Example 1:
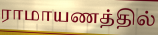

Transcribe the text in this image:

ராமாயணத்தில்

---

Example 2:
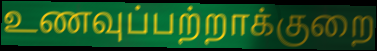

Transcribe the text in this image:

உணவுப்பற்றாக்குறை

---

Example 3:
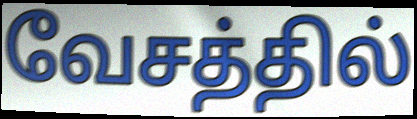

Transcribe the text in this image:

வேசத்தில்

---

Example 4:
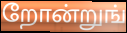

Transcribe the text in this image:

றோன்றுங்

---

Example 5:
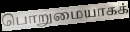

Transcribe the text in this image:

பொறுமையாகக்